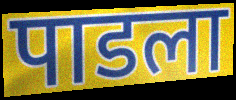
पाडला